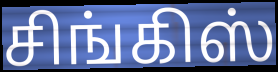
சிங்கிஸ்